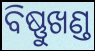
ବିଷ୍ଣୁଖଣ୍ଡ